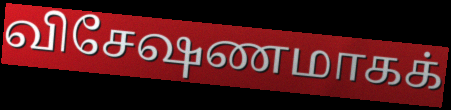
விசேஷணமாகக்